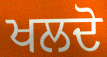
ਖਲਦੋ